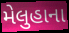
મેલુહાના